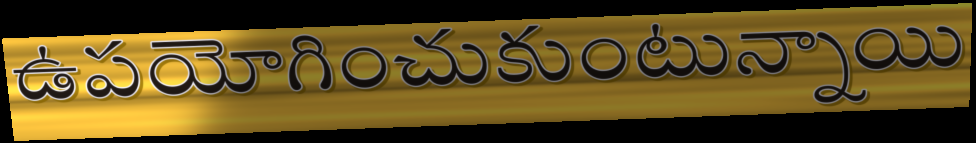
ఉపయోగించుకుంటున్నాయి